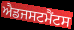
ਐਡਜਸਟਮੈਂਟਸ